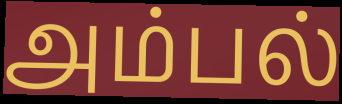
அம்பல்